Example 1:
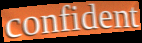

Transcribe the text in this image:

confident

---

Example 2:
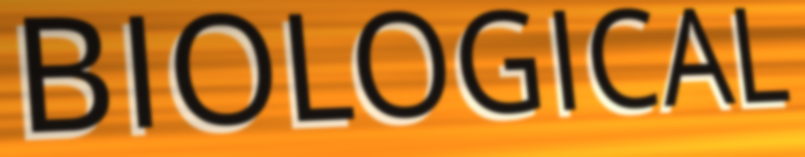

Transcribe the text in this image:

BIOLOGICAL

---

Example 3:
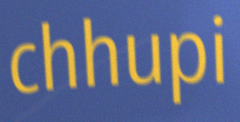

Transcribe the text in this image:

chhupi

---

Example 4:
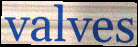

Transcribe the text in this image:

valves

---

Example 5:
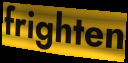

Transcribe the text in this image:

frighten